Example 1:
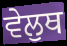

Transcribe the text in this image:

ਵੇਲੁਥ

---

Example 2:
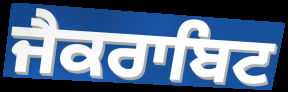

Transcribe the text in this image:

ਜੈਕਰਾਬਿਟ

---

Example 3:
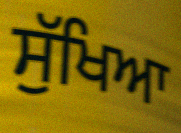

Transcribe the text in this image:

ਸੁੱਖਿਆ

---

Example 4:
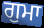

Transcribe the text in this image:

ਗੁਮਾ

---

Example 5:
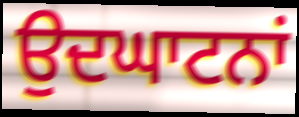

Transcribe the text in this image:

ਉਦਘਾਟਨਾਂ